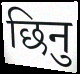
छिनु